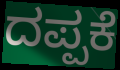
ದಪ್ಪಕೆ